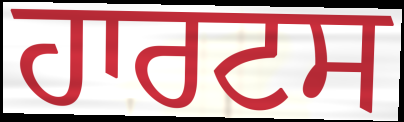
ਹਾਰਟਸ